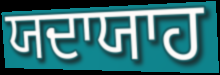
ਯਦਾਯਾਹ